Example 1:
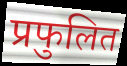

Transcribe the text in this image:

प्रफुलित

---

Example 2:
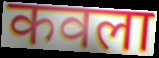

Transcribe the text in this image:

कवला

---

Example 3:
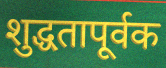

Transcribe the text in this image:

शुद्धतापूर्वक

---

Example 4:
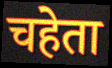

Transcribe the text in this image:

चहेता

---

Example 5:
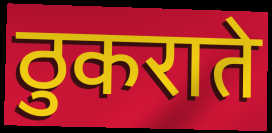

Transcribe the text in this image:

ठुकराते